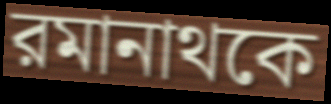
রমানাথকে